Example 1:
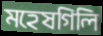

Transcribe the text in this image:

মহেষগিলি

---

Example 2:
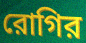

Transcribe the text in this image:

রোগির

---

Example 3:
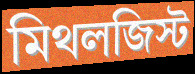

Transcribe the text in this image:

মিথলজিস্ট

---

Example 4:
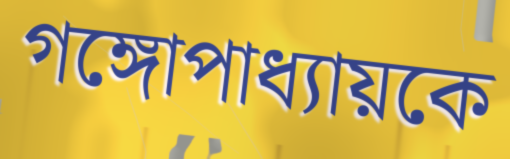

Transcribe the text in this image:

গঙ্গোপাধ্যায়কে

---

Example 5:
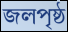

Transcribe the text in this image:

জলপৃষ্ঠ